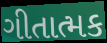
ગીતાત્મક